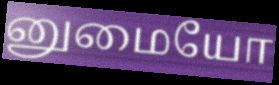
னுமையோ